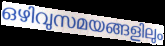
ഒഴിവുസമയങ്ങളിലും